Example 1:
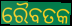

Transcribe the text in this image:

ରୈବତକ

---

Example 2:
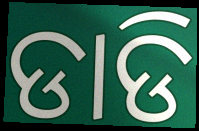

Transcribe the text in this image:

ଡାଡି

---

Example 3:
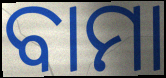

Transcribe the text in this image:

ବାମା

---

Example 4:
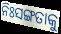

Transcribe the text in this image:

ନିଃସଙ୍ଗତାକୁ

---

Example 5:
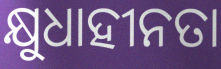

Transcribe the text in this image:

କ୍ଷୁଧାହୀନତା